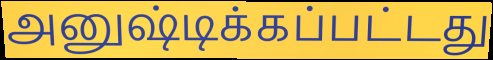
அனுஷ்டிக்கப்பட்டது